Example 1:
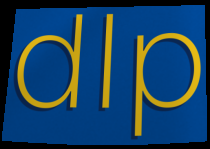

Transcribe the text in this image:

dlp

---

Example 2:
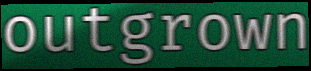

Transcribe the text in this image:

outgrown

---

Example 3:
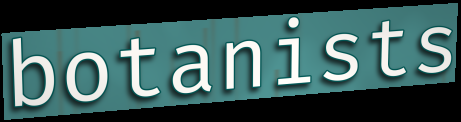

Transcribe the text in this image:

botanists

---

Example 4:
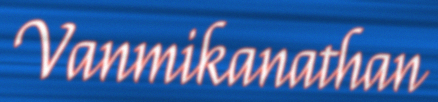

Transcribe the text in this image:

Vanmikanathan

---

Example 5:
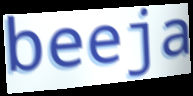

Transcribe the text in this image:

beeja